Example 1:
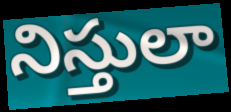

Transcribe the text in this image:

నిస్తులా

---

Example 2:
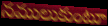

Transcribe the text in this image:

నములుకుంటూ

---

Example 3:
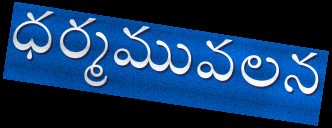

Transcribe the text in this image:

ధర్మమువలన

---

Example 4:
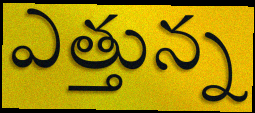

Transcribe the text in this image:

ఎత్తున్న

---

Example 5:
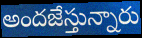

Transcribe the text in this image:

అందజేస్తున్నారు